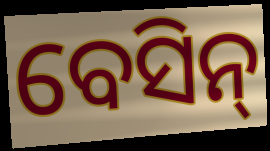
ବେସିନ୍